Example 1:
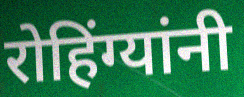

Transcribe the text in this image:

रोहिंग्यांनी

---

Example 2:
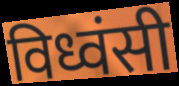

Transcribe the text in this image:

विध्वंसी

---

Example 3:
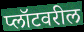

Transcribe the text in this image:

प्लॉटवरील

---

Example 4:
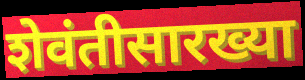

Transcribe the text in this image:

शेवंतीसारख्या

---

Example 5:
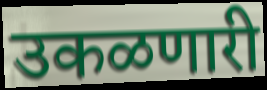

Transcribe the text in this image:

उकळणारी